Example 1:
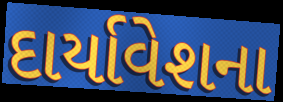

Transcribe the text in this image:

દાર્યાવેશના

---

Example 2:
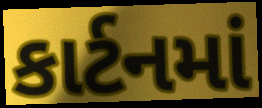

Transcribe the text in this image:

કાર્ટનમાં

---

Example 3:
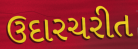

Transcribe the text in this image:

ઉદારચરીત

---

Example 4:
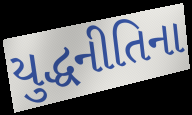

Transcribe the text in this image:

યુદ્ધનીતિના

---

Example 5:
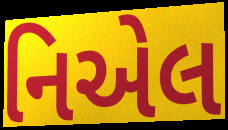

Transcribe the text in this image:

નિએલ